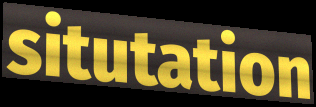
situtation